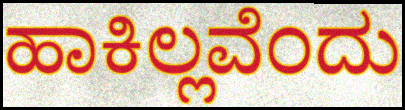
ಹಾಕಿಲ್ಲವೆಂದು